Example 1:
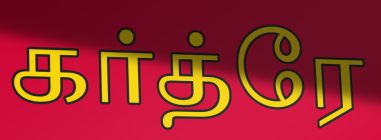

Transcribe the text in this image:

கர்த்ரே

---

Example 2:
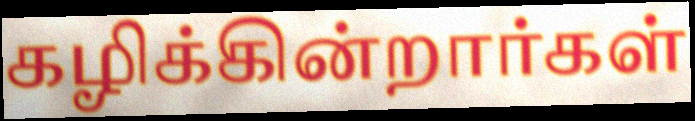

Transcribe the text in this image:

கழிக்கின்றார்கள்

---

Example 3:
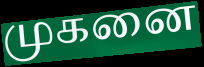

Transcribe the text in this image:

முகனை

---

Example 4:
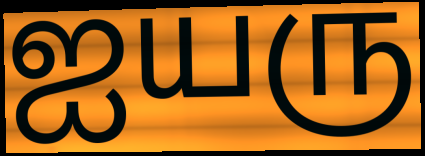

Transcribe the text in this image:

ஐயரு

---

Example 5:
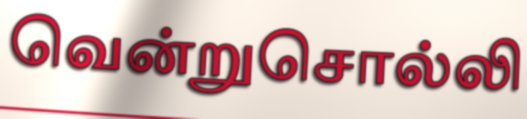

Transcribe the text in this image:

வென்றுசொல்லி